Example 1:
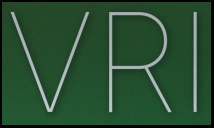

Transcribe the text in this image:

VRI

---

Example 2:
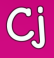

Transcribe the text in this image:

Cj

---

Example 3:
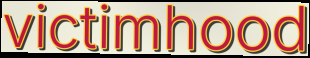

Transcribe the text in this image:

victimhood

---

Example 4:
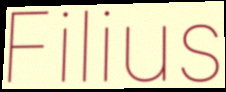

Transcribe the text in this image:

Filius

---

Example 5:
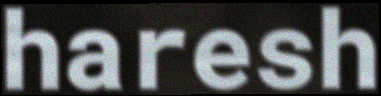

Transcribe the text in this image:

haresh